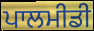
ਪਾਲਮੀਡੀ